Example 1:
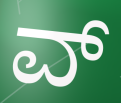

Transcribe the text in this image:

ವ್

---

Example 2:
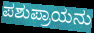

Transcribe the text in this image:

ಪಶುಪ್ರಾಯನು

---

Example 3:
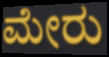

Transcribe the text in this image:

ಮೇರು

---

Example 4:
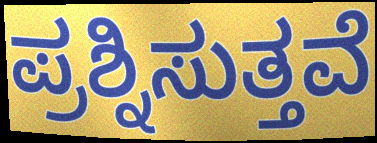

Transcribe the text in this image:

ಪ್ರಶ್ನಿಸುತ್ತವೆ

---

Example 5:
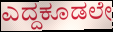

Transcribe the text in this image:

ಎದ್ದಕೂಡಲೇ